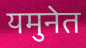
यमुनेत